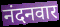
नंदनवार